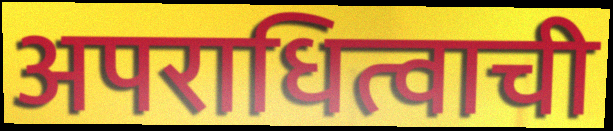
अपराधित्वाची